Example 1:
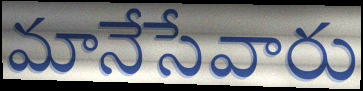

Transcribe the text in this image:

మానేసేవారు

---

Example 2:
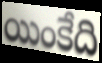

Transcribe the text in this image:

యింకేది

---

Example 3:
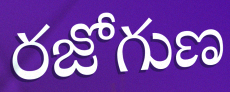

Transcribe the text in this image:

రజోగుణ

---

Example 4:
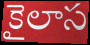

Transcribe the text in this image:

కైలాస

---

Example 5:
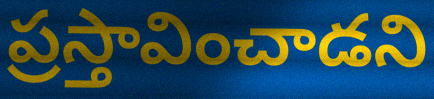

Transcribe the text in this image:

ప్రస్తావించాడని